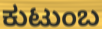
ಕುಟುಂಬ